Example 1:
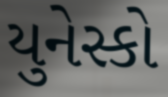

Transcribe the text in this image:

યુનેસ્કો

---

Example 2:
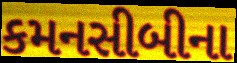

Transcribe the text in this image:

કમનસીબીના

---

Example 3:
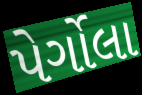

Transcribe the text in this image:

પેર્ગોલા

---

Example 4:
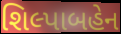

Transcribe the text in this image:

શિલ્પાબહેન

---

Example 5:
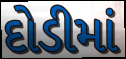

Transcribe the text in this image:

દોડીમાં